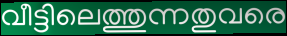
വീട്ടിലെത്തുന്നതുവരെ